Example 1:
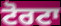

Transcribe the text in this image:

ਟੋਰਟਾ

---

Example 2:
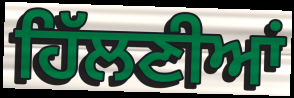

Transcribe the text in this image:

ਹਿੱਲਣੀਆਂ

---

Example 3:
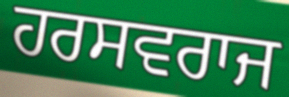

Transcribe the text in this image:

ਹਰਸਵਰਾਜ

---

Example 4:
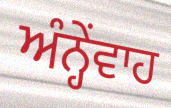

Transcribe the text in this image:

ਅੰਨ੍ਹੇਂਵਾਹ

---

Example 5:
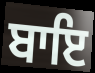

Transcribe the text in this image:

ਬਾਇ